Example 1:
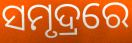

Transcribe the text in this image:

ସମୃଦ୍ରରେ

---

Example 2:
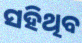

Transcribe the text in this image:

ସହିଥିବ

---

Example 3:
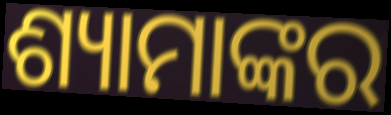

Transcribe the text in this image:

ଶ୍ୟାମାଙ୍କର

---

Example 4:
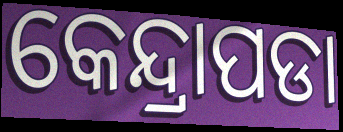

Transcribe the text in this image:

କେନ୍ଦ୍ରାପଡା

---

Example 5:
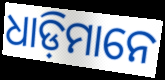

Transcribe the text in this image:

ଧାଡ଼ିମାନେ